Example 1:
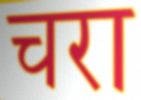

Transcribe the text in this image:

चरा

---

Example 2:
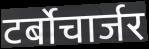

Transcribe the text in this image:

टर्बोचार्जर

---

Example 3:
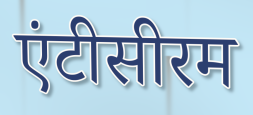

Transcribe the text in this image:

एंटीसीरम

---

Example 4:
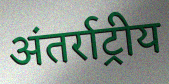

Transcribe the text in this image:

अंतर्राट्रीय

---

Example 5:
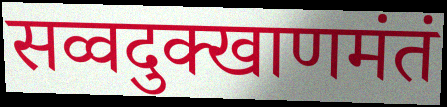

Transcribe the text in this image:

सव्वदुक्खाणमंतं